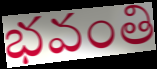
భవంతి